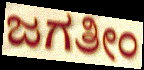
ಜಗತೀಂ